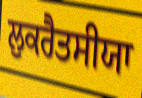
ਲੁਕਰੈਤਸੀਯਾ